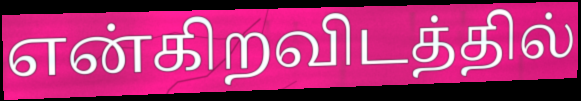
என்கிறவிடத்தில்